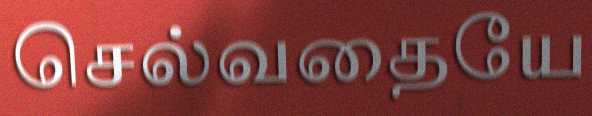
செல்வதையே